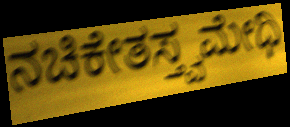
ನಚಿಕೇತಸ್ತ್ವಮೇಧಿ